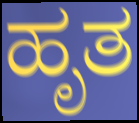
ಹೃತ